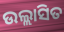
ଉଲ୍ଲାସିତ